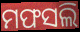
ମଫସଲି